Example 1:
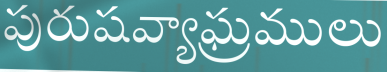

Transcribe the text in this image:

పురుషవ్యాఘ్రములు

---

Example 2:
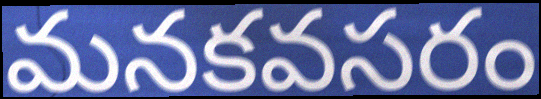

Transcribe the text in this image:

మనకవసరం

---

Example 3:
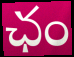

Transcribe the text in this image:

ఛం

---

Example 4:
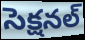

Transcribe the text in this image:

సెక్షనల్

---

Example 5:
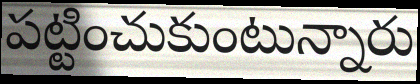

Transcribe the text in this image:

పట్టించుకుంటున్నారు